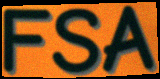
FSA